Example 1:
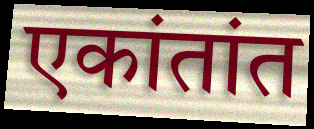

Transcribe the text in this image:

एकांतांत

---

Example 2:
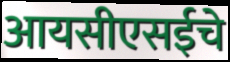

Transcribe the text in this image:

आयसीएसईचे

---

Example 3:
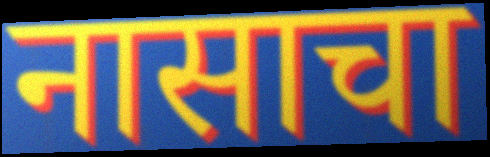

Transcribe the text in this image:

नासाचा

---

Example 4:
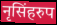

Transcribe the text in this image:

नृसिंहरुप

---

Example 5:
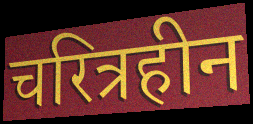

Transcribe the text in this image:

चरित्रहीन